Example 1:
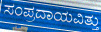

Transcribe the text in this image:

ಸಂಪ್ರದಾಯವಿತ್ತು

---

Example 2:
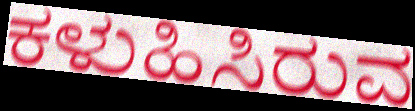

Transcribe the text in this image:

ಕಳುಹಿಸಿರುವ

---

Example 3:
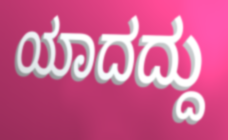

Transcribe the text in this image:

ಯಾದದ್ದು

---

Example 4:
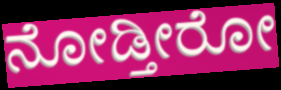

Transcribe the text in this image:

ನೋಡ್ತೀರೋ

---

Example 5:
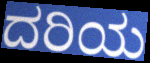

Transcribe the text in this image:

ದರಿಯ